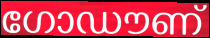
ഗോഡൗണ്